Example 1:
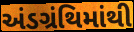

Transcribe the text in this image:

અંડગ્રંથિમાંથી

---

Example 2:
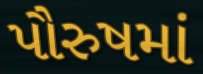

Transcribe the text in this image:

પૌરુષમાં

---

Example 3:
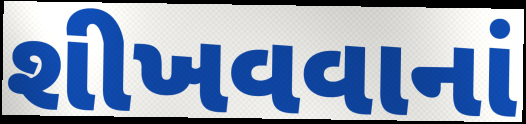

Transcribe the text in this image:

શીખવવાનાં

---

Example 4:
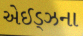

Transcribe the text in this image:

એઈડ્ઝના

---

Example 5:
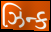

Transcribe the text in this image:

ઝિન્ક